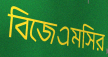
বিজেএমসির